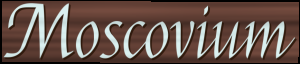
Moscovium